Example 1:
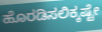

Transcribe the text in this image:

ಹೊರಡಿಸಲಿಕ್ಕಷ್ಟೇ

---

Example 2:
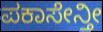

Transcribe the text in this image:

ಪಕಾಸೇನ್ತೀ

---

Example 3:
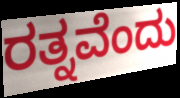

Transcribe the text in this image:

ರತ್ನವೆಂದು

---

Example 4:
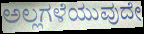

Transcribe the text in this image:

ಅಲ್ಲಗಳೆಯುವುದೇ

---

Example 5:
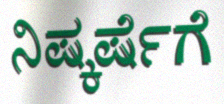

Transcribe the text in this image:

ನಿಷ್ಕರ್ಷೆಗೆ